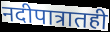
नदीपात्रातही